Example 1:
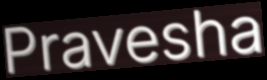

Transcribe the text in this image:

Pravesha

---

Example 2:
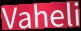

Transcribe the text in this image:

Vaheli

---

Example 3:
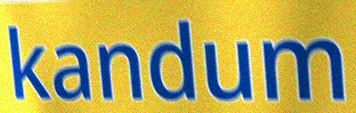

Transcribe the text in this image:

kandum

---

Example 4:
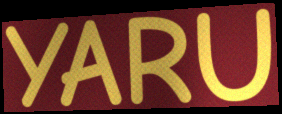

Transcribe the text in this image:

YARU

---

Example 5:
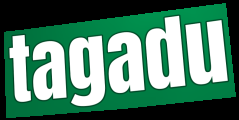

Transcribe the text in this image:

tagadu